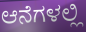
ಆನೆಗಳಲ್ಲಿ